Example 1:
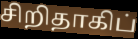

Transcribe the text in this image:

சிறிதாகிப்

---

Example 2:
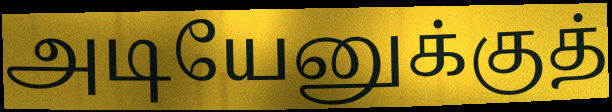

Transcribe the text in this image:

அடியேனுக்குத்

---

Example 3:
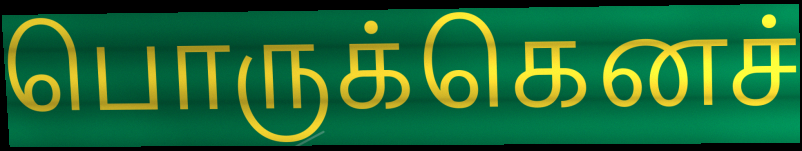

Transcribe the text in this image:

பொருக்கெனச்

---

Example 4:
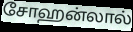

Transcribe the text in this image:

சோஹன்லால்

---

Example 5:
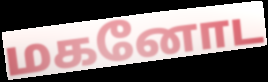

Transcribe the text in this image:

மகனோட